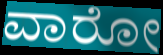
ವಾರೋ